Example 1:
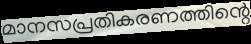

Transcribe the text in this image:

മാനസപ്രതികരണത്തിന്റെ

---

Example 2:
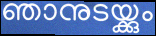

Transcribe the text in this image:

ഞാനുടയ്ക്കും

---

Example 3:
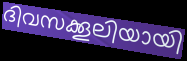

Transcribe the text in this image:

ദിവസക്കൂലിയായി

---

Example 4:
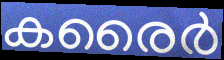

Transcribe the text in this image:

കരൈർ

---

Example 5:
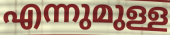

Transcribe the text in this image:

എന്നുമുള്ള